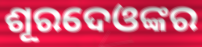
ଶୂରଦେଓଙ୍କର